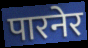
पारनेर